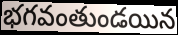
భగవంతుండయిన